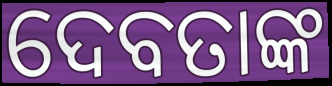
ଦେବତାଙ୍କ